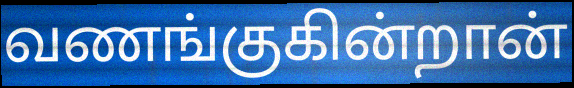
வணங்குகின்றான்